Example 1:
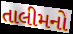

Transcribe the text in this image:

તાલીમનો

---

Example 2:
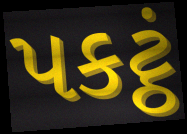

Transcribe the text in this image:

પકટ્ઠં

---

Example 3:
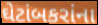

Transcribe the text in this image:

ઘેટાંબકરાંના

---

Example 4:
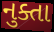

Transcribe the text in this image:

નુક્તા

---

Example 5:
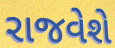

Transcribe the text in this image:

રાજવેશે